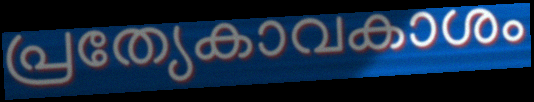
പ്രത്യേകാവകാശം